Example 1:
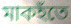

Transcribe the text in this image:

মাকহঁতে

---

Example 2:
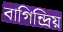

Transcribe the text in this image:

বাগিন্দ্ৰিয়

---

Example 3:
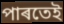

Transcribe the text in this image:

পাৰতেই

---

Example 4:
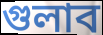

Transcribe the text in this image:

গুলাব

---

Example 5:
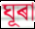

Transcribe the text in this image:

ঘূৰা